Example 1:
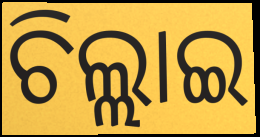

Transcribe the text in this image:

ଚିଲ୍ଲାଇ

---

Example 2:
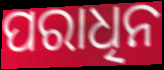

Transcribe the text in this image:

ପରାଧିନ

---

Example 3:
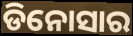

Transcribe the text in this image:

ଡିନୋସାର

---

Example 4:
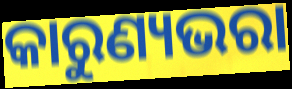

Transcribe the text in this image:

କାରୁଣ୍ୟଭରା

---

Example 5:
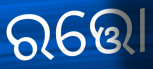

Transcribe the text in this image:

ରତ୍ତୋ